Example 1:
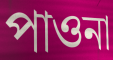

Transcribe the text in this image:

পাওনা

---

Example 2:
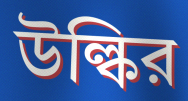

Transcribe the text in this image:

উল্কির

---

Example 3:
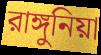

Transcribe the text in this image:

রাঙ্গুনিয়া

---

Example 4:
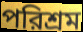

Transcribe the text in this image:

পরিশ্রম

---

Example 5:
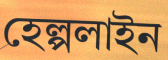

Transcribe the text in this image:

হেল্পলাইন